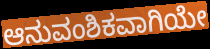
ಆನುವಂಶಿಕವಾಗಿಯೇ